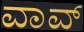
ವಾವ್